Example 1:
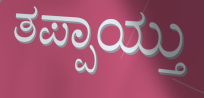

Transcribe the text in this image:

ತಪ್ಪಾಯ್ತು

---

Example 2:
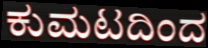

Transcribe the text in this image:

ಕುಮಟದಿಂದ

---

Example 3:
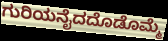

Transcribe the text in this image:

ಗುರಿಯನೈದದೊಡೊಮ್ಮೆ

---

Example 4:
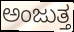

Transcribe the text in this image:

ಅಂಜುತ್ತ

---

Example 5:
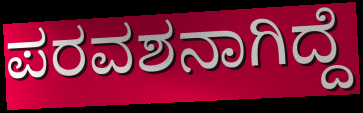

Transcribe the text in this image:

ಪರವಶನಾಗಿದ್ದೆ